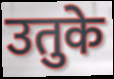
उतुके